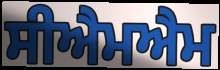
ਸੀਐਮਐਮ